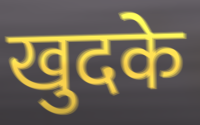
खुदके